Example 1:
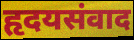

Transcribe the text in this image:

हृदयसंवाद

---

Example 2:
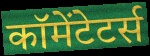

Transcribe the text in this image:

कॉमेंटेटर्स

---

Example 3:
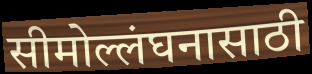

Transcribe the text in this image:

सीमोल्लंघनासाठी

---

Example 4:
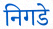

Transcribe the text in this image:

निगडे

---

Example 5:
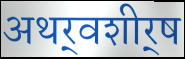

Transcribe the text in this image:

अथर्वशीर्ष